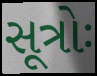
સૂત્રોઃ